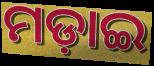
ମଡ଼ାଇ